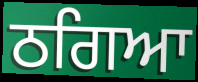
ਠਗਿਆ